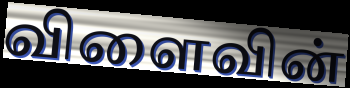
விளைவின்